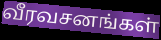
வீரவசனங்கள்